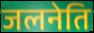
जलनेति